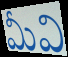
మీవి